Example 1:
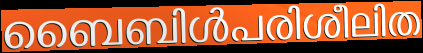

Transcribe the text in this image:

ബൈബിൾപരിശീലിത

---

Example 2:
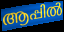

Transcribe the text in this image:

ആപ്പിൽ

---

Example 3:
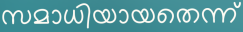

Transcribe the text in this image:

സമാധിയായതെന്ന്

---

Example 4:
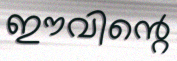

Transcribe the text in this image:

ഈവിന്റെ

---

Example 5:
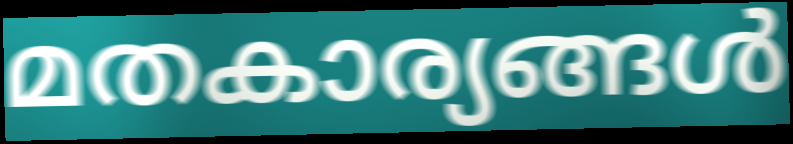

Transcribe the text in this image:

മതകാര്യങ്ങൾ